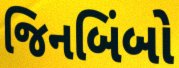
જિનબિંબો